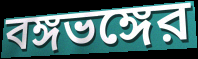
বঙ্গভঙ্গের